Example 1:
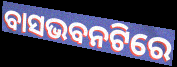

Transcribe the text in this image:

ବାସଭବନଟିରେ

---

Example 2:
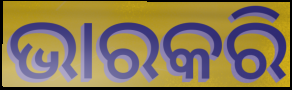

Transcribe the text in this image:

ଭାରକରି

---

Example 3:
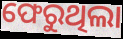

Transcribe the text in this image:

ଫେରୁଥିଲା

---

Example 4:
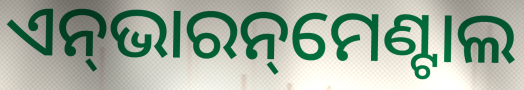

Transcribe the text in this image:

ଏନ୍‌ଭାରନ୍‌ମେଣ୍ଟାଲ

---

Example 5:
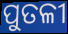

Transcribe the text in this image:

ପୁତଳୀ